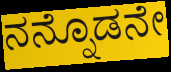
ನನ್ನೊಡನೇ